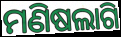
ମଣିଷଲାଗି